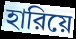
হারিয়ে